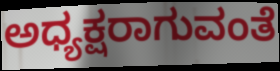
ಅಧ್ಯಕ್ಷರಾಗುವಂತೆ